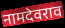
नामदेवराव